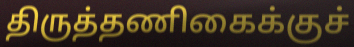
திருத்தணிகைக்குச்